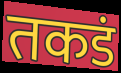
तकडं